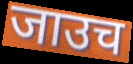
जाउच